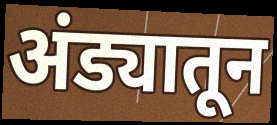
अंड्यातून